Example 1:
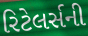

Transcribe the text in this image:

રિટેલર્સની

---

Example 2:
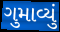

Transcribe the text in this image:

ગુમાવ્યું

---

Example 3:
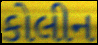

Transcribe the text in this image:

કોલીન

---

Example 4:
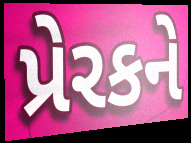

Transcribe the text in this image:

પ્રેરકને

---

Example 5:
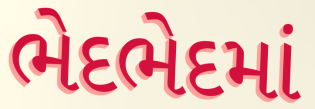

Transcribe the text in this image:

ભેદભેદમાં